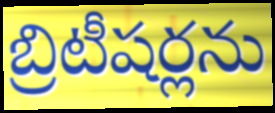
బ్రిటీషర్లను